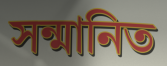
সন্মানিত